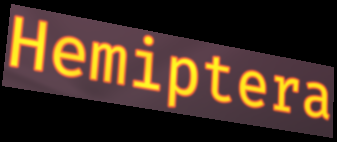
Hemiptera